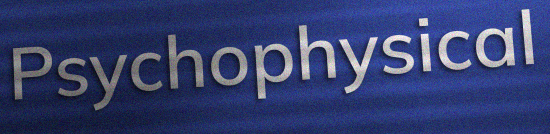
Psychophysical